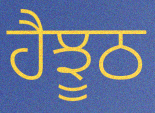
ਹੈਝੂਠ